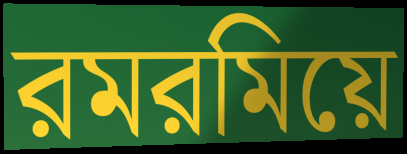
রমরমিয়ে